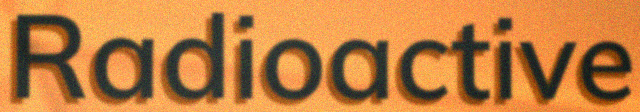
Radioactive